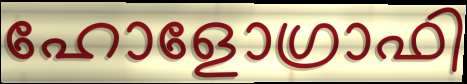
ഹോളോഗ്രാഫി